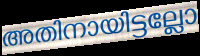
അതിനായിട്ടല്ലോ